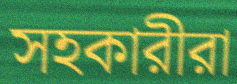
সহকারীরা